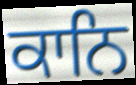
ਕਾਨਿ